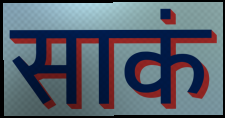
साकं